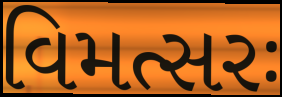
વિમત્સરઃ